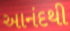
આનંદથી